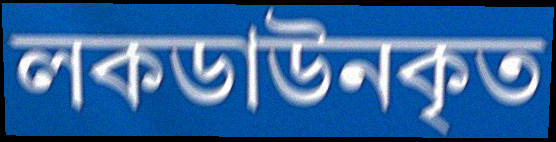
লকডাউনকৃত